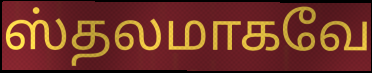
ஸ்தலமாகவே